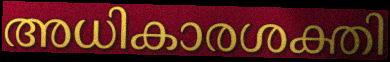
അധികാരശക്തി